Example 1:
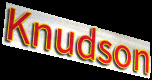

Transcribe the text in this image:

Knudson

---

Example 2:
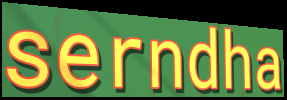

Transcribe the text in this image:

serndha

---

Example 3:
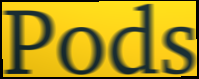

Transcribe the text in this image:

Pods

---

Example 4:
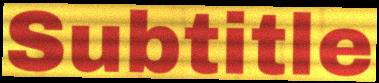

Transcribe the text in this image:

Subtitle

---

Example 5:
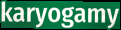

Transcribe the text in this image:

karyogamy